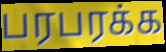
பரபரக்க